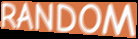
RANDOM